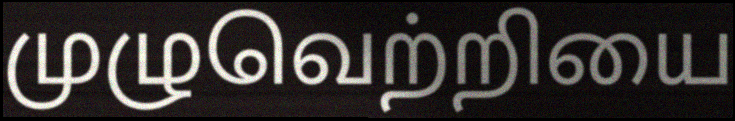
முழுவெற்றியை